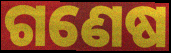
ଗଣେଷ